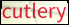
cutlery